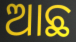
ଆଛ